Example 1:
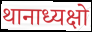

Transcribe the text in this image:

थानाध्यक्षो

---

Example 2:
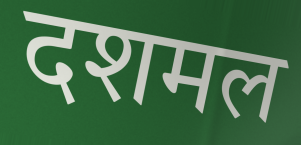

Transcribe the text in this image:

दशमल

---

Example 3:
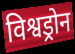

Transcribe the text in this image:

विश्वड्रोन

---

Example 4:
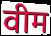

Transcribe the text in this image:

वीम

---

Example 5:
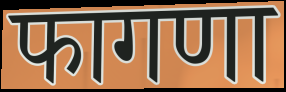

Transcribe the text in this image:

फागणा